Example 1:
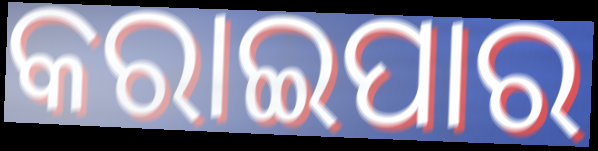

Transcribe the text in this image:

କରାଇପାର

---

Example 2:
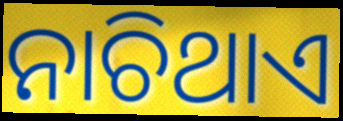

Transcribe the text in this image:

ନାଚିଥାଏ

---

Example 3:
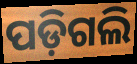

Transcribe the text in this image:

ପଡ଼ିଗଲି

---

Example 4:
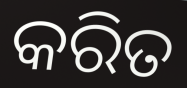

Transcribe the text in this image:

କରିତ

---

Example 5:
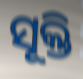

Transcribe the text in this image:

ସୂକ୍ତି